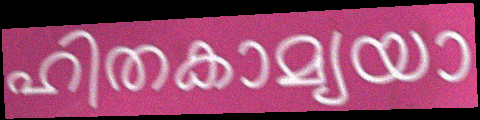
ഹിതകാമ്യയാ